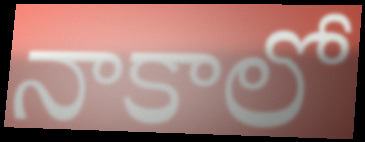
నాకాలో